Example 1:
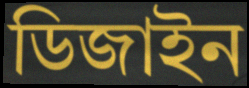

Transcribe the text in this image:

ডিজাইন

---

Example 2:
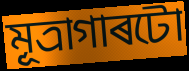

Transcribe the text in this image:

মূত্ৰাগাৰটো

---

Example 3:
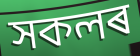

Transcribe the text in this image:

সকলৰ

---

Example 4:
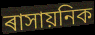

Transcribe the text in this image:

ৰাসায়নিক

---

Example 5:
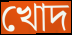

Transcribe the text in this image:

খোদ